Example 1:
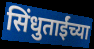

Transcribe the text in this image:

सिंधुताईंच्या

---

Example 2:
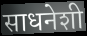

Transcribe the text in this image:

साधनेशी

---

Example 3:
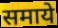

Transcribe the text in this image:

समाये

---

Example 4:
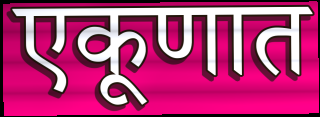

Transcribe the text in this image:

एकूणात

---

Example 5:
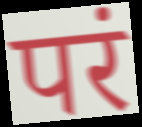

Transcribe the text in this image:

परं